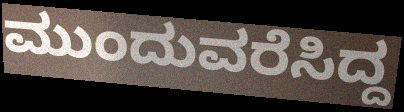
ಮುಂದುವರೆಸಿದ್ದ